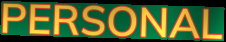
PERSONAL